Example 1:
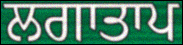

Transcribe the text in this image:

ਲਗਾਤਾਪ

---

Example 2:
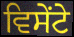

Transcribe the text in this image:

ਵਿਸੇਂਟੇ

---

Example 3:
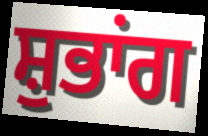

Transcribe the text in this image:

ਸ਼ੁਭਾਂਗ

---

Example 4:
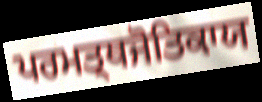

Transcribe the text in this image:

ਪਰਮਤ੍ਥਜੋਤਿਕਾਯ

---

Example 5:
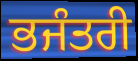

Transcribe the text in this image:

ਭਜੰਤਰੀ